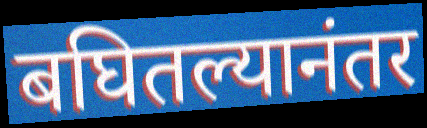
बघितल्यानंतर